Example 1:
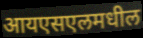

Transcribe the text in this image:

आयएसएलमधील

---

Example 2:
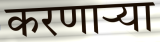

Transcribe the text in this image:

करणाऱ्या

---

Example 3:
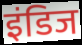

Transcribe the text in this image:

इंडिज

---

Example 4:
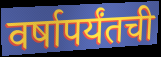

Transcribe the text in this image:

वर्षापर्यंतची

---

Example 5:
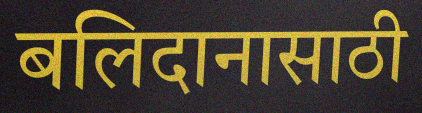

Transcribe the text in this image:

बलिदानासाठी